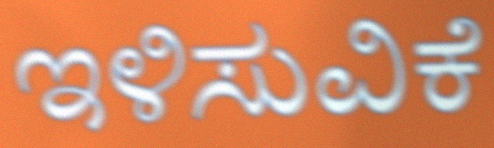
ಇಳಿಸುವಿಕೆ